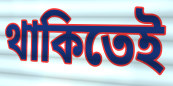
থাকিতেই